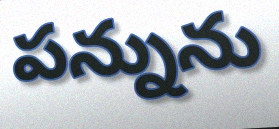
పన్నును